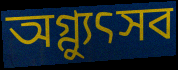
অগ্ন্যুৎসব